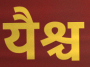
यैश्च